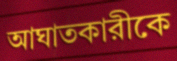
আঘাতকারীকে